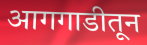
आगगाडीतून